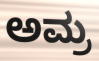
ಅಮ್ರ